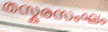
തസ്കരസംഘം